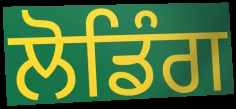
ਲੋਡਿੰਗ